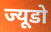
ज्यूडो